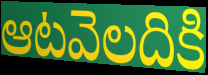
ఆటవెలదికి